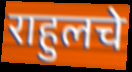
राहुलचे